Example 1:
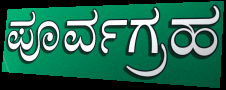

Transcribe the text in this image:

ಪೂರ್ವಗ್ರಹ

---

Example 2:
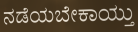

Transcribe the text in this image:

ನಡೆಯಬೇಕಾಯ್ತು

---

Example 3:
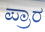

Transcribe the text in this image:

ಪ್ರಾರ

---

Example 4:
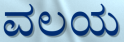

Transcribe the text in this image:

ವಲಯ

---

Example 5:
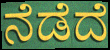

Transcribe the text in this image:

ನೆಡೆದೆ